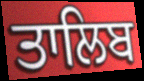
ਤਾਲਿਬ